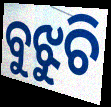
ବୁଝୁଚି